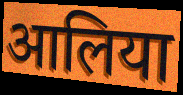
आलिया